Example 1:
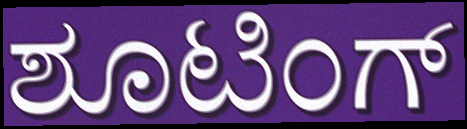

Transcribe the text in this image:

ಶೂಟಿಂಗ್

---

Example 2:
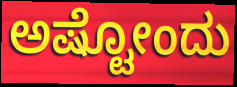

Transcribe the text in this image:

ಅಷ್ಟೋಂದು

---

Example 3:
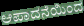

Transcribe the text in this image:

ಆಪಾದನೆಯಿಂದ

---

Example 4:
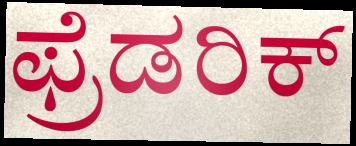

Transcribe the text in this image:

ಫ್ರೆಡರಿಕ್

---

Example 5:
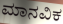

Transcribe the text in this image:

ಮಾನವಿಕ